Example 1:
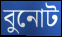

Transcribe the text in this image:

বুনোট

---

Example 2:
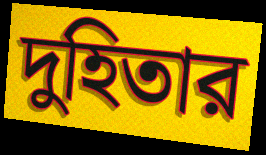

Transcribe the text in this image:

দুহিতার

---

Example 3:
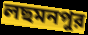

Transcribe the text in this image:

লছমনপুর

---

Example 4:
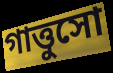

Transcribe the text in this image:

গাত্তুসো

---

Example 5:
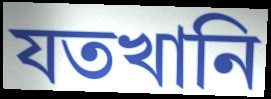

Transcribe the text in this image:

যতখানি